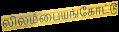
லிலம்பையங்கோட்டூ